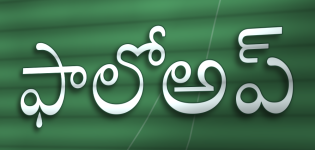
ఫాలోఅప్